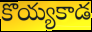
కొయ్యకాడ